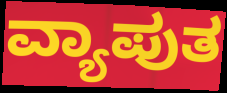
ವ್ಯಾಪುತ